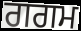
ਗਗਮ